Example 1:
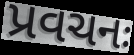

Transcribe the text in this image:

પ્રવચનઃ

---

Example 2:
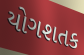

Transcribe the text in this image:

યોગશતક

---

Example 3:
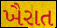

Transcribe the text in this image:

ખૈરાત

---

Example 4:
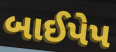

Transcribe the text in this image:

બાઈપેપ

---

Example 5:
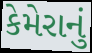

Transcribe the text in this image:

કેમેરાનું